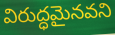
విరుద్ధమైనవని